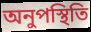
অনুপস্থিতি